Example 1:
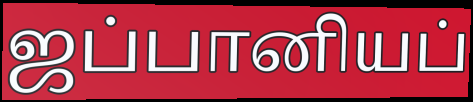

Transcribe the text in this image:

ஜப்பானியப்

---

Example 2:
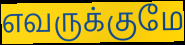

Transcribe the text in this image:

எவருக்குமே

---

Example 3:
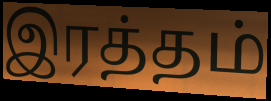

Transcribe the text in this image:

இரத்தம்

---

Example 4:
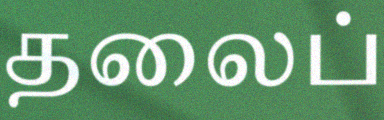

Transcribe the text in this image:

தலைப்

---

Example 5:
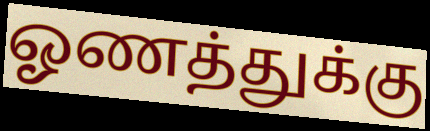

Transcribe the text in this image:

ஓணத்துக்கு